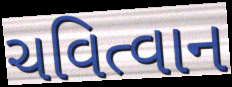
ચવિત્વાન